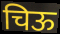
चिऊ